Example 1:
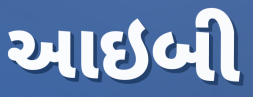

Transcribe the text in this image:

આઇબી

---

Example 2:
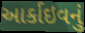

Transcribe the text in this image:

આર્કાઇવનું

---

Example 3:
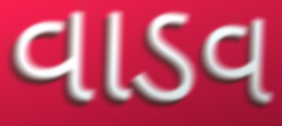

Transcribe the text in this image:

વાડવ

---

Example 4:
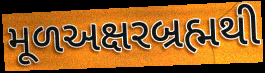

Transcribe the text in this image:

મૂળઅક્ષરબ્રહ્મથી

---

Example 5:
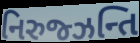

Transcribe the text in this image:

નિરુજ્ઝન્તિ